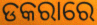
ଡକରାରେ